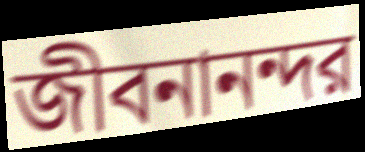
জীবনানন্দর